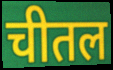
चीतल